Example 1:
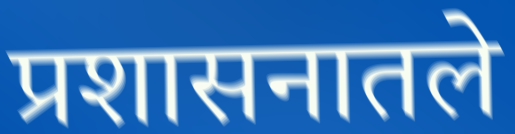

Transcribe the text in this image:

प्रशासनातले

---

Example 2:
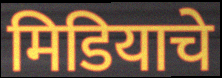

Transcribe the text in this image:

मिडियाचे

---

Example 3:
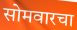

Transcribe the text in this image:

सोमवारचा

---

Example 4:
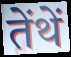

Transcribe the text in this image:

तेंथें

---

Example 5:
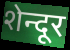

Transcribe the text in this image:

शेन्दूर